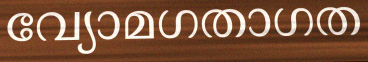
വ്യോമഗതാഗത